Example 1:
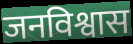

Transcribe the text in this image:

जनविश्वास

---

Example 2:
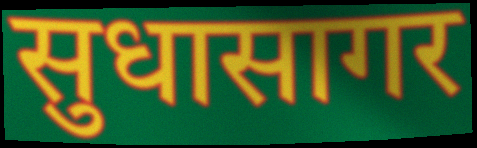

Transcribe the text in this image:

सुधासागर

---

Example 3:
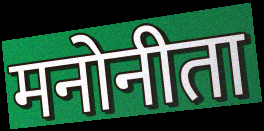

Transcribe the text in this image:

मनोनीता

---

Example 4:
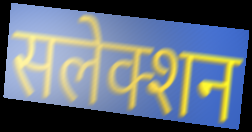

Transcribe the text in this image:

सलेक्शन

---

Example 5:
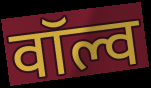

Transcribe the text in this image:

वॉल्व